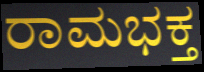
ರಾಮಭಕ್ತ